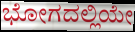
ಭೋಗದಲ್ಲಿಯೇ